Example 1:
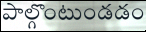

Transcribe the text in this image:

పాల్గొంటుండడం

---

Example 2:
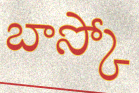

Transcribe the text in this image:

బాస్కో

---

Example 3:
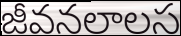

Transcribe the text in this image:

జీవనలాలస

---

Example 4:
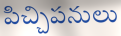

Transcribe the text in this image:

పిచ్చిపనులు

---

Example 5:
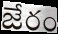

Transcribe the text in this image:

జేరం